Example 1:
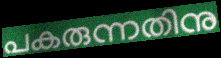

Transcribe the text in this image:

പകരുന്നതിനു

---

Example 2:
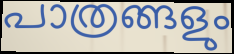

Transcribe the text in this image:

പാത്രങ്ങളും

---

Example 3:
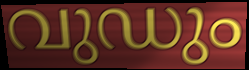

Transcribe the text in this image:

വുഡും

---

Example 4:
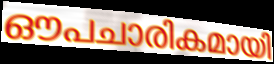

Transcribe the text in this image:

ഔപചാരികമായി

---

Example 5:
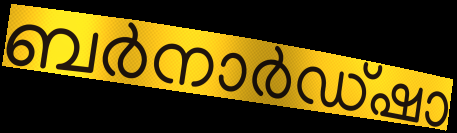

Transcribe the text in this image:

ബർനാർഡ്ഷാ